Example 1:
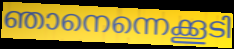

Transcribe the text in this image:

ഞാനെന്നെക്കൂടി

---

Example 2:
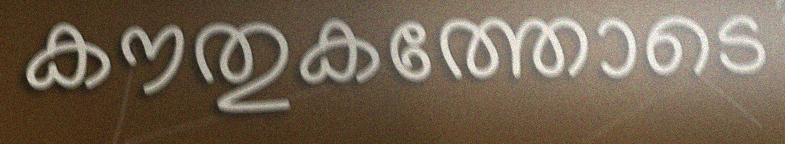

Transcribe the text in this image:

കൗതുകത്തോടെ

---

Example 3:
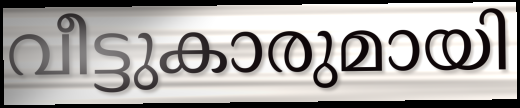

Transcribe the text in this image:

വീട്ടുകാരുമായി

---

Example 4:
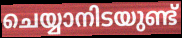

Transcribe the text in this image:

ചെയ്യാനിടയുണ്ട്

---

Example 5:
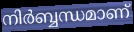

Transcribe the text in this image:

നിർബ്ബന്ധമാണ്